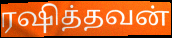
ரஷித்தவன்